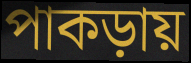
পাকড়ায়